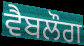
ਵੈਬਲੌਗ